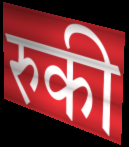
रुकी